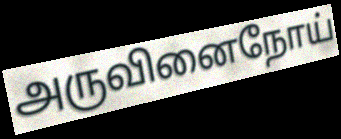
அருவினைநோய்